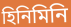
হিনিমিনি